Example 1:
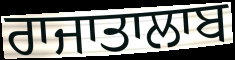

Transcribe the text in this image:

ਰਾਜਾਤਾਲਾਬ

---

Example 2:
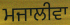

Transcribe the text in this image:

ਮਜਾਲੀਵਾ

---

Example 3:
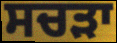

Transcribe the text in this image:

ਸਚੜਾ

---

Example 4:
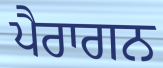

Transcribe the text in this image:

ਪੈਰਾਗਨ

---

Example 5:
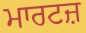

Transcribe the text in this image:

ਮਾਰਟਜ਼